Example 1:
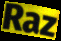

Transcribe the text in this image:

Raz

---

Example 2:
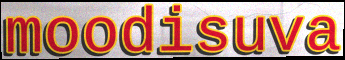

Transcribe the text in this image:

moodisuva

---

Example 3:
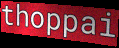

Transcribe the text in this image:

thoppai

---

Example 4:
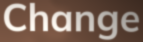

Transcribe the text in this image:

Change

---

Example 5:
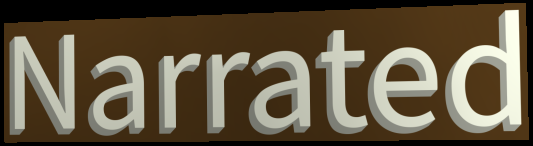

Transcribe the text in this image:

Narrated